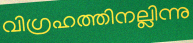
വിഗ്രഹത്തിനല്ലിന്നു